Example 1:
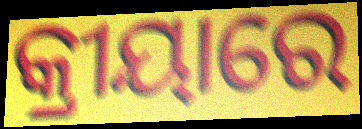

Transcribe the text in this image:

କ୍ରୀୟାରେ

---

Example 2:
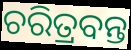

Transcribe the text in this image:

ଚରିତ୍ରବନ୍ତ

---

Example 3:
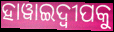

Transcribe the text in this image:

ହାୱାଇଦ୍ଵୀପକୁ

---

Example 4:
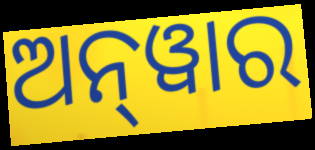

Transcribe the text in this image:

ଅନ୍‌ୱାର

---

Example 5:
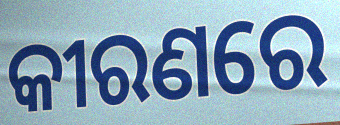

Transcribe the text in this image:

କୀରଣରେ